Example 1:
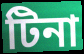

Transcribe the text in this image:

টিনা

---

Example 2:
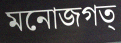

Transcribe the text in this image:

মনোজগত্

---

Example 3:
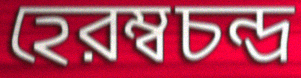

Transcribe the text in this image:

হেরম্বচন্দ্র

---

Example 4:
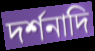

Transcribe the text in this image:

দর্শনাদি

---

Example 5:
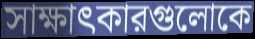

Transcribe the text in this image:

সাক্ষাৎকারগুলোকে